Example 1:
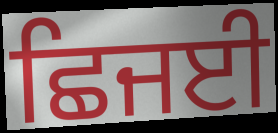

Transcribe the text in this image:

ਛਿਜਈ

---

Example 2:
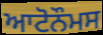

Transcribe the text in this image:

ਆਟੋਨੌਮਸ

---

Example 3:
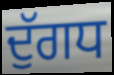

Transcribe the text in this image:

ਦੁੱਗਧ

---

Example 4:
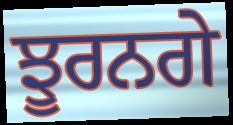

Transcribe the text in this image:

ਝੂਰਨਗੇ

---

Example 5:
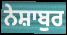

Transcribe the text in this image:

ਨੇਸ਼ਾਬੁਰ